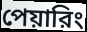
পেয়ারিং